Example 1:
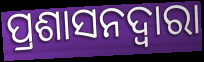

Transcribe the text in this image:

ପ୍ରଶାସନଦ୍ୱାରା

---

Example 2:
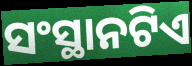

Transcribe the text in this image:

ସଂସ୍ଥାନଟିଏ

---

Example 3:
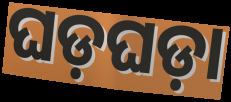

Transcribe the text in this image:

ଘଡ଼ଘଡ଼ା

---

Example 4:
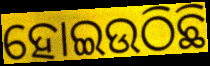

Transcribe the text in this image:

ହୋଇଉଠିଛି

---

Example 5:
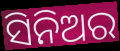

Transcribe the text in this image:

ସିନିଅର